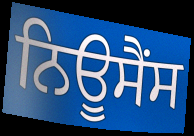
ਨਿਊਸੈਂਸ